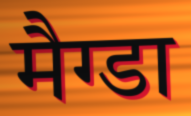
मैग्डा